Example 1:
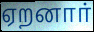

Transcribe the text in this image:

ஏறனார்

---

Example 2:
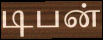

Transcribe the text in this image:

டிபன்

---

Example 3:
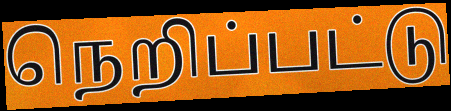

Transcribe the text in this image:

நெறிப்பட்டு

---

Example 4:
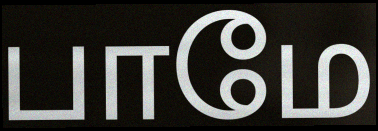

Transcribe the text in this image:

பாமே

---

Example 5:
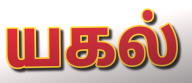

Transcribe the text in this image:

யகல்